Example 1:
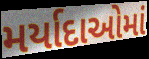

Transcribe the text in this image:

મર્યાદાઓમાં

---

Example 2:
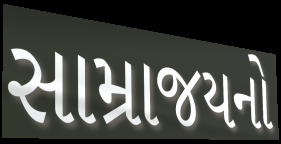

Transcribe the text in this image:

સામ્રાજયનો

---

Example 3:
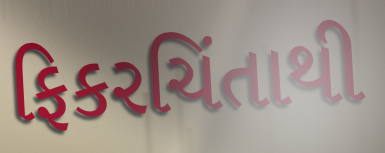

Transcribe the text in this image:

ફિકરચિંતાથી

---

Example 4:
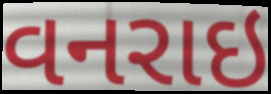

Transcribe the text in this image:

વનરાઇ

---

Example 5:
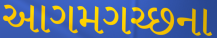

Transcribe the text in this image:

આગમગચ્છના